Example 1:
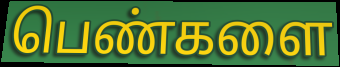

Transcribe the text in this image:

பெண்களை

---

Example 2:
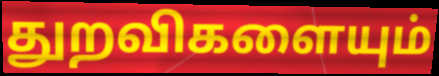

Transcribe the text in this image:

துறவிகளையும்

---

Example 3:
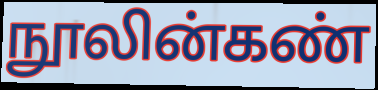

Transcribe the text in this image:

நூலின்கண்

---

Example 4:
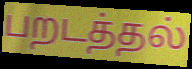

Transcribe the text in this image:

பறடத்தல்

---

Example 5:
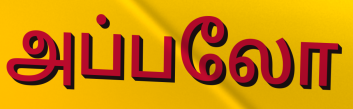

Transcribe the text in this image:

அப்பலோ